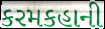
કરમકહાની